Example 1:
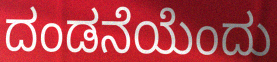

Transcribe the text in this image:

ದಂಡನೆಯೆಂದು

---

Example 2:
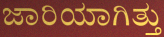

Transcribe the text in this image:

ಜಾರಿಯಾಗಿತ್ತು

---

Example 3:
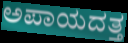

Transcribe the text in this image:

ಅಪಾಯದತ್ತ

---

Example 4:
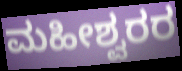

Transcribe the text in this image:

ಮಹೀಶ್ವರರ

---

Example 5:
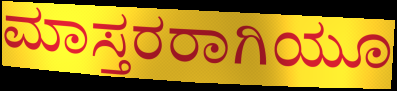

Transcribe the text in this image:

ಮಾಸ್ತರರಾಗಿಯೂ